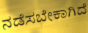
ನಡೆಸಬೇಕಾಗಿದೆ